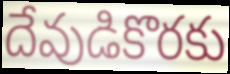
దేవుడికొరకు